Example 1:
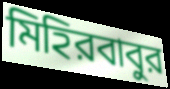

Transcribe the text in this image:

মিহিরবাবুর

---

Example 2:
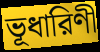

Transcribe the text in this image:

ভূধারিণী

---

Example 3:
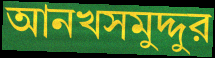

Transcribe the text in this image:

আনখসমুদ্দুর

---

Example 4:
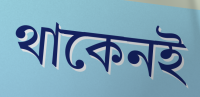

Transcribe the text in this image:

থাকেনই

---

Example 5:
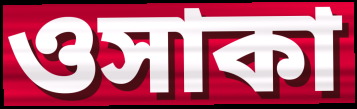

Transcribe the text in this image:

ওসাকা